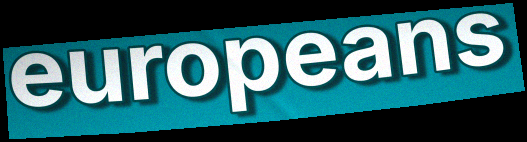
europeans